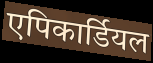
एपिकार्डियल